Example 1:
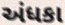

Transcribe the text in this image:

અંધકા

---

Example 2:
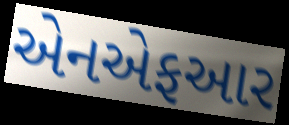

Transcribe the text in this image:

એનએફઆર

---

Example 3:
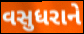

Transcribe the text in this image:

વસુધરાને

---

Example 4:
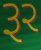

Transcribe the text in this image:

રૂર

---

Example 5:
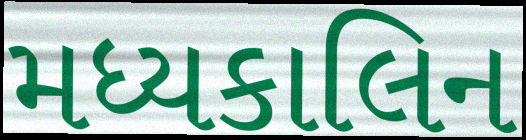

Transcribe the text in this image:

મધ્યકાલિન